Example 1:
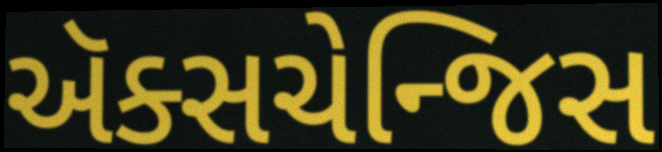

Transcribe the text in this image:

ઍક્સચેન્જિસ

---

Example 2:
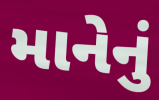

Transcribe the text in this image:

માનેનું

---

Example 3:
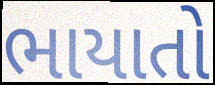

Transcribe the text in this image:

ભાયાતો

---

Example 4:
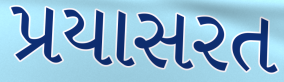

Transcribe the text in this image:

પ્રયાસરત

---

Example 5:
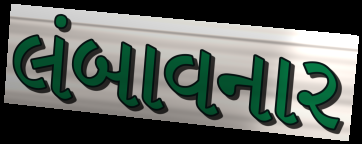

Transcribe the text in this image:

લંબાવનાર